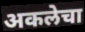
अकलेचा